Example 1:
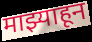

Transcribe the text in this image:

माझ्याहून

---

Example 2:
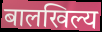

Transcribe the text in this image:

बालखिल्य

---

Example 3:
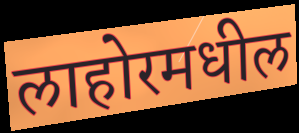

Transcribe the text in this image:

लाहोरमधील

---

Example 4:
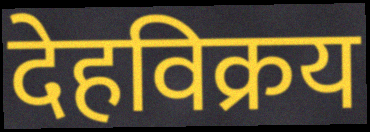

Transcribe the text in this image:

देहविक्रय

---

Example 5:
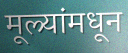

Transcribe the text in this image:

मूल्यांमधून